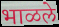
भाळले